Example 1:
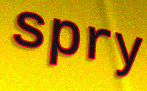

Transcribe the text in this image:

spry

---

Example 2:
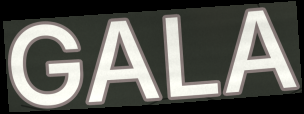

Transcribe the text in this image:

GALA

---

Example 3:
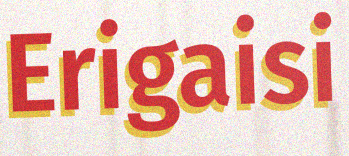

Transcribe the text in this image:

Erigaisi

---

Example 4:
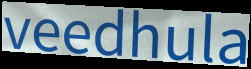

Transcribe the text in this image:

veedhula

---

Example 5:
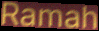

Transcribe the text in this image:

Ramah